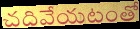
చదివేయటంతో